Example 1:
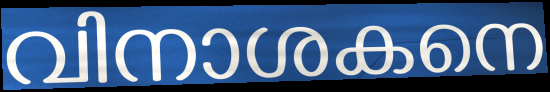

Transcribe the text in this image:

വിനാശകനെ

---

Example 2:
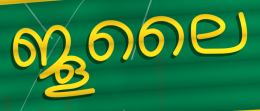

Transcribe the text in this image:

ജൂലൈ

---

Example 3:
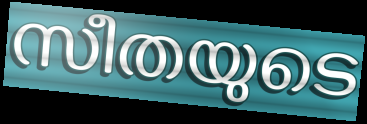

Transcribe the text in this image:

സീതയുടെ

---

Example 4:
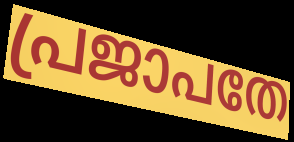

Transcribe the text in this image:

പ്രജാപതേ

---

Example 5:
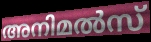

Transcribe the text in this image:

അനിമൽസ്